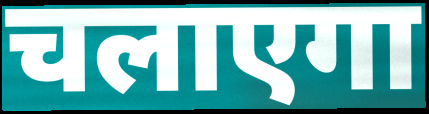
चलाएगा